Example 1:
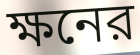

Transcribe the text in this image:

ক্ষনের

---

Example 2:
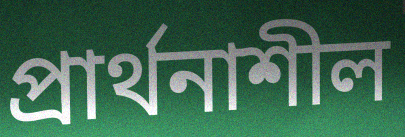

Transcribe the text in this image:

প্রার্থনাশীল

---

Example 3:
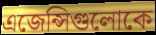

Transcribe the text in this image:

এজেন্সিগুলোকে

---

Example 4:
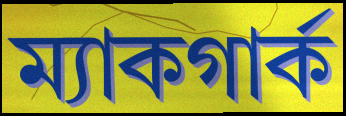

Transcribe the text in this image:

ম্যাকগার্ক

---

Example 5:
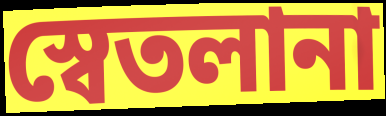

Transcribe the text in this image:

স্বেতলানা